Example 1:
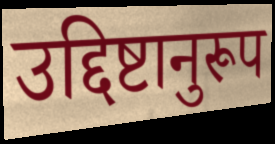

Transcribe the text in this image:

उद्दिष्टानुरूप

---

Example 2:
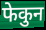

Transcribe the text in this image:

फेकुन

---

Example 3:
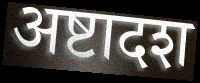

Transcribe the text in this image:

अष्टादश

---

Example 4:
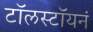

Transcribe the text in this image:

टॉलस्टॉयनं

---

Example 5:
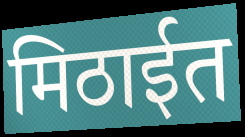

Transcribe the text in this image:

मिठाईत